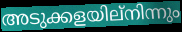
അടുക്കളയില്നിന്നും